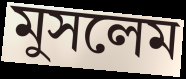
মুসলেম